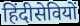
हिंदीसेवियों